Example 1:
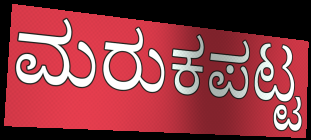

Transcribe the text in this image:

ಮರುಕಪಟ್ಟ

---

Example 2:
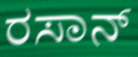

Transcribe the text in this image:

ರಸಾನ್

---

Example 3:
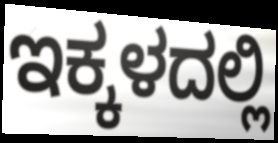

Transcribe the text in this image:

ಇಕ್ಕಳದಲ್ಲಿ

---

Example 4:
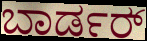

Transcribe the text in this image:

ಬಾರ್ಡರ್‍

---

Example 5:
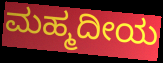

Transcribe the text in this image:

ಮಹ್ಮದೀಯ